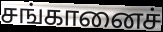
சங்கானைச்